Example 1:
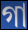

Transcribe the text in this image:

গা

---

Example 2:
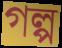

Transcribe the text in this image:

গল্প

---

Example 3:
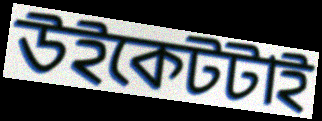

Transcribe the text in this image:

উইকেটটাই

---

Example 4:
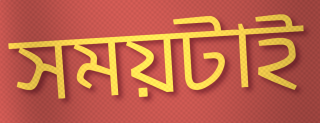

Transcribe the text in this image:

সময়টাই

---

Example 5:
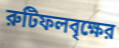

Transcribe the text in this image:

রুটিফলবৃক্ষের